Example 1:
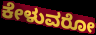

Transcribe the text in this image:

ಕೇಳುವರೋ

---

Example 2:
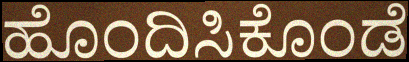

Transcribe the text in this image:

ಹೊಂದಿಸಿಕೊಂಡೆ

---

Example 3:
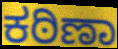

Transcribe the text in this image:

ಕಠಿಣಾ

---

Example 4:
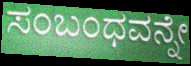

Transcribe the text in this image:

ಸಂಬಂಧವನ್ನೇ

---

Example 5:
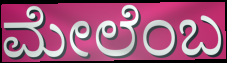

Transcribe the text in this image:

ಮೇಲೆಂಬ